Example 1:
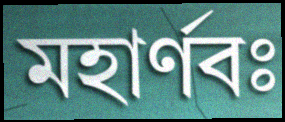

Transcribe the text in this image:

মহার্ণবঃ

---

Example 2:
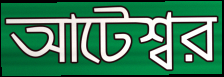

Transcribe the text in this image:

আটেশ্বর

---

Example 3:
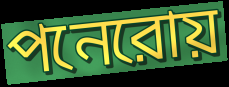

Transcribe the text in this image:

পনেরোয়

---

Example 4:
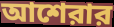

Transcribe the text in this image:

আশেরার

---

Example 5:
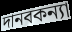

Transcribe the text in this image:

দানবকন্যা